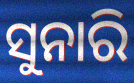
ସୁନାରି